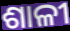
ଶାଳୀ